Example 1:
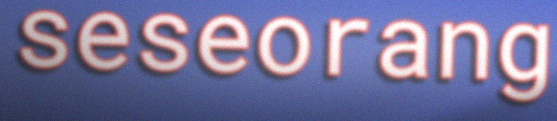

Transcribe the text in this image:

seseorang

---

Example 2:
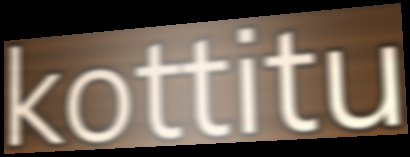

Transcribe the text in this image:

kottitu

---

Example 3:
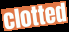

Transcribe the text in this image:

clotted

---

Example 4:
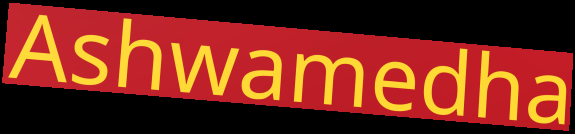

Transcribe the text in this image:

Ashwamedha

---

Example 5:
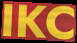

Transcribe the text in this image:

IKC